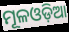
ମୂଳଓଡ଼ିଆ